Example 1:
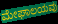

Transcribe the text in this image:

ಮೇಘಾಲಯವು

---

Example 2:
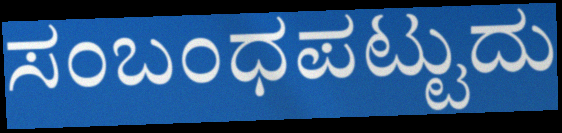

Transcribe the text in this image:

ಸಂಬಂಧಪಟ್ಟುದು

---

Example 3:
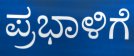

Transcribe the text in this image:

ಪ್ರಭಾಳಿಗೆ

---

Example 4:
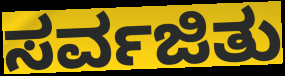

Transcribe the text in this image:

ಸರ್ವಜಿತು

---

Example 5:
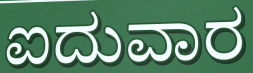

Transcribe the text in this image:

ಐದುವಾರ